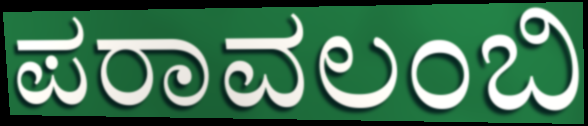
ಪರಾವಲಂಬಿ